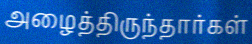
அழைத்திருந்தார்கள்